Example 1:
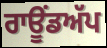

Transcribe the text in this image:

ਰਾਊਂਡਅੱਪ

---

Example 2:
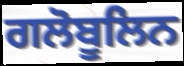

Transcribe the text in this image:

ਗਲੋਬੂਲਿਨ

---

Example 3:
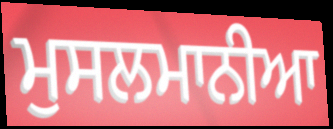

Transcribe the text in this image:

ਮੁਸਲਮਾਨੀਆ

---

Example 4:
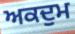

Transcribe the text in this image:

ਅਕਦੁਮ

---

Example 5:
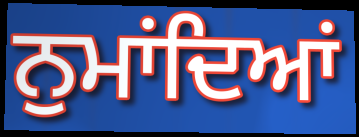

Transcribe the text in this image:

ਨੁਮਾਂਦਿਆਂ